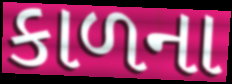
કાળના